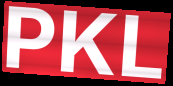
PKL